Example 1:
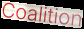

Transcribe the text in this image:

Coalition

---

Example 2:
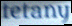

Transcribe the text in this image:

tetany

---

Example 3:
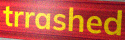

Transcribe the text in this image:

trrashed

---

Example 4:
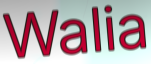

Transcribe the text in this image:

Walia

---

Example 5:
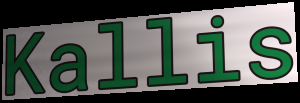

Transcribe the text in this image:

Kallis